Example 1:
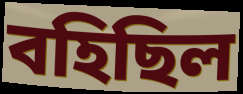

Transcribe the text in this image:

বহিছিল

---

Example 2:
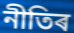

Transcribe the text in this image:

নীতিৰ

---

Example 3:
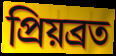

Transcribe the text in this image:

প্ৰিয়ব্ৰত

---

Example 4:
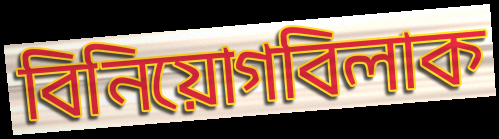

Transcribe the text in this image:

বিনিয়োগবিলাক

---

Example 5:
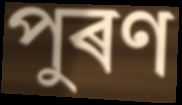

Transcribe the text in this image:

পুৰণ